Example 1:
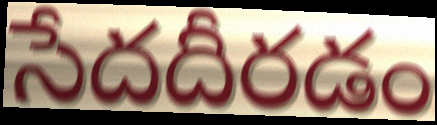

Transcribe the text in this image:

సేదదీరడం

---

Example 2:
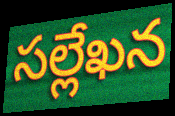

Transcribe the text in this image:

సల్లేఖన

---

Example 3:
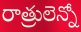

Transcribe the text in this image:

రాత్రులెన్నో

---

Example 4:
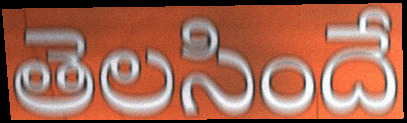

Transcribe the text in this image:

తెలసిందే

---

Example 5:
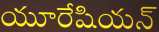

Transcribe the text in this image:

యూరేషియన్